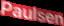
Paulsen